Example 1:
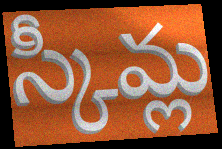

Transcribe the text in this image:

స్కీమ్ల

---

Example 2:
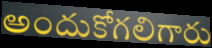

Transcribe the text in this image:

అందుకోగలిగారు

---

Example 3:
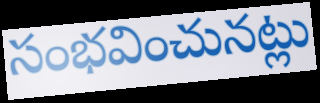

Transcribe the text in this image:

సంభవించునట్లు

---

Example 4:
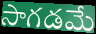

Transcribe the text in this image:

సాగడమే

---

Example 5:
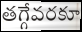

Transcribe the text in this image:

తగ్గేవరకూ